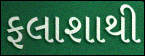
ફલાશાથી